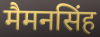
मैमनसिंह